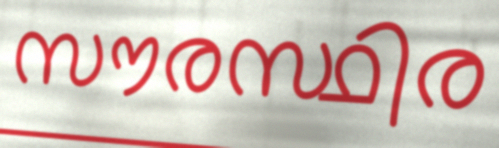
സൗരസ്ഥിര